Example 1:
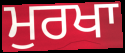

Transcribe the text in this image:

ਮੁਰਖਾ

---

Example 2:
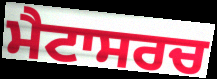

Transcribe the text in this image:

ਮੈਟਾਸਰਚ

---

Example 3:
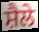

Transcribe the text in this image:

ਸ਼ੈਲੇ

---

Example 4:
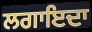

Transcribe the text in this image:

ਲਗਾਇਦਾ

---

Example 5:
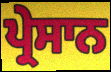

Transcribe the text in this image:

ਪ੍ਰੇਸਾਨ